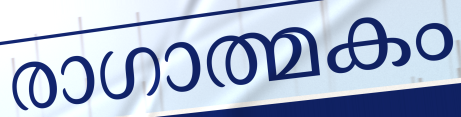
രാഗാത്മകം